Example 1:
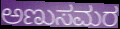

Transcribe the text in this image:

ಅಣುಸಮರ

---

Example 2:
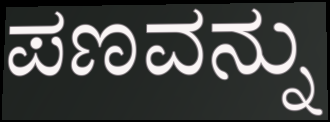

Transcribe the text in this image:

ಪಣವನ್ನು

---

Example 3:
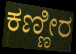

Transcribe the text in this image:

ಕಣ್ಣೀರ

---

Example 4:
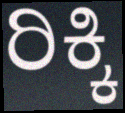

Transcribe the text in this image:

ರಿಕ್ಕಿ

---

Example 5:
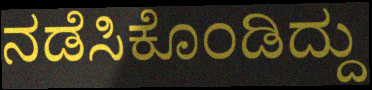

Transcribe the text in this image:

ನಡೆಸಿಕೊಂಡಿದ್ದು